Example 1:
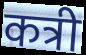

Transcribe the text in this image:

कत्री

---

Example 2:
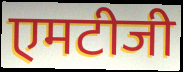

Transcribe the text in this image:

एमटीजी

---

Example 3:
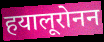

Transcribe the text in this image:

हयालूरोनन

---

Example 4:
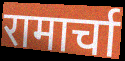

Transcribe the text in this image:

रामार्चा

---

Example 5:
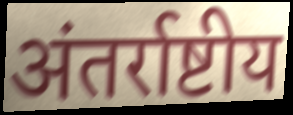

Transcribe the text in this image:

अंतर्राष्टीय